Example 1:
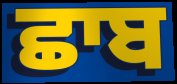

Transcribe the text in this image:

ਛਾਬ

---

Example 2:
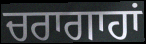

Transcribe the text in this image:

ਚਰਾਗਾਹਾਂ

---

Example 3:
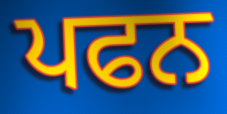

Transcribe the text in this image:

ਪਫਨ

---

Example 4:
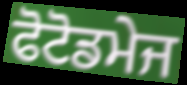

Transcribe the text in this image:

ਫੋਟੋਡਮੇਜ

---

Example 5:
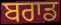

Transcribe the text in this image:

ਬਰਾਡ